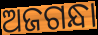
ଅଜଗନ୍ଧା